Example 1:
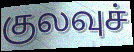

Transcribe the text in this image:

குலவுச்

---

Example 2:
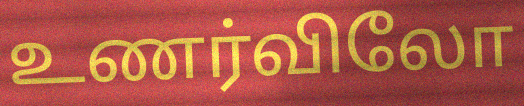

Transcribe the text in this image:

உணர்விலோ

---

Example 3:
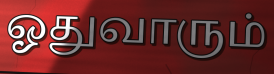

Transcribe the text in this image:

ஓதுவாரும்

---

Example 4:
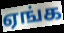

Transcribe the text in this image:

ஏங்க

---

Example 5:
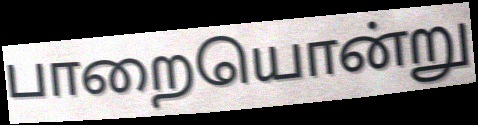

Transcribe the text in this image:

பாறையொன்று